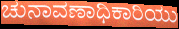
ಚುನಾವಣಾಧಿಕಾರಿಯು